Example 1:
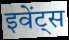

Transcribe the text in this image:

इवेंट्स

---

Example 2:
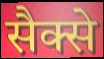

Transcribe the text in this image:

सैक्से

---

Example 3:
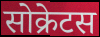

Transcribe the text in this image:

सोक्रेटस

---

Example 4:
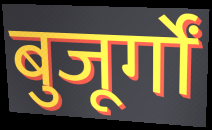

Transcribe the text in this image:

बुजूर्गों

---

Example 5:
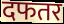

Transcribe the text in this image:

दफतर